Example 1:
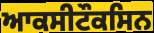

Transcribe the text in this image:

ਆਕਸੀਟੌਕਸਿਨ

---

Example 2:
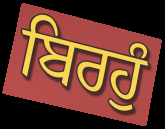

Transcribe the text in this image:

ਬਿਰਹੁੰ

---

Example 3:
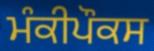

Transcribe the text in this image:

ਮੰਕੀਪੌਕਸ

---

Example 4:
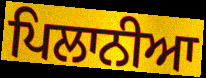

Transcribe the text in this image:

ਪਿਲਾਨੀਆ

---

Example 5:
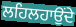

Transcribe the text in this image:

ਲਹਿਲਹਾਉਂਦੇ